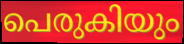
പെരുകിയും